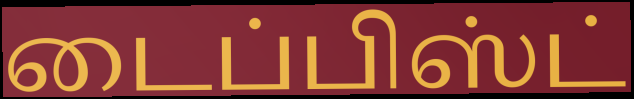
டைப்பிஸ்ட்